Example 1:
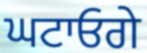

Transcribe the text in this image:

ਘਟਾਓਗੇ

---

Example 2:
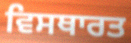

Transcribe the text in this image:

ਵਿਸਥਾਰਤ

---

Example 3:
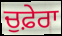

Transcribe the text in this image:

ਚੁਫ਼ੇਰਾ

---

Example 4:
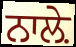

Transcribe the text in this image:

ਨਾਲ਼ੇ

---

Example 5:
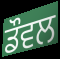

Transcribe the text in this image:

ਡੌਵਲ